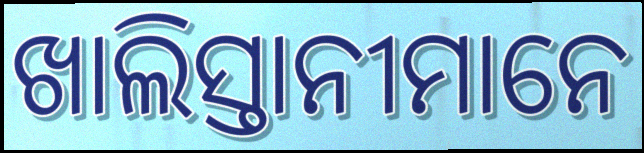
ଖାଲିସ୍ତାନୀମାନେ